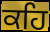
ਕਹਿ